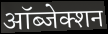
ऑब्जेक्शन